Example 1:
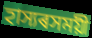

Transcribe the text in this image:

হাস্যৰসময়ী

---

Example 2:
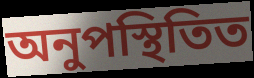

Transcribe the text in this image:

অনুপস্থিতিত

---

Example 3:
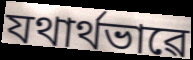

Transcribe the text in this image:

যথাৰ্থভাৱে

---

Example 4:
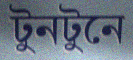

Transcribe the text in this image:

টুনটুনে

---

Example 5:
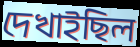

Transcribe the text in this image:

দেখাইছিল